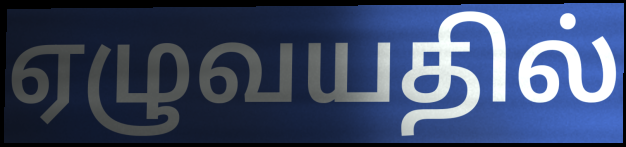
ஏழுவயதில்